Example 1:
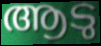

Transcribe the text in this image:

ആടു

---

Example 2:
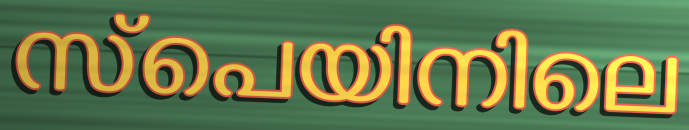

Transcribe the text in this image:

സ്‌പെയിനിലെ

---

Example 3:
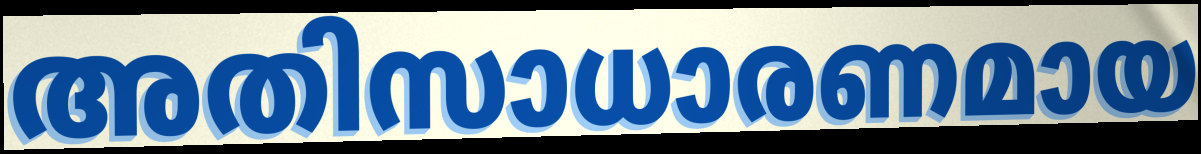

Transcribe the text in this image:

അതിസാധാരണമായ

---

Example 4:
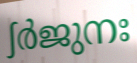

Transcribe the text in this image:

ഽർജുനഃ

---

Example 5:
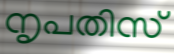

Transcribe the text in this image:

നൃപതിസ്